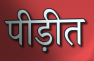
पीड़ीत